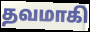
தவமாகி